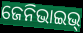
ଜେନିଭାଇଭ୍